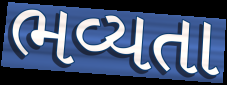
ભવ્યતા